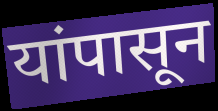
यांपासून